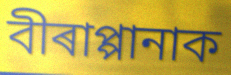
বীৰাপ্পানাক